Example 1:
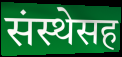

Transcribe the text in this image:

संस्थेसह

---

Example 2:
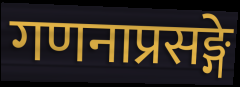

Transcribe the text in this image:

गणनाप्रसङ्गे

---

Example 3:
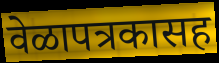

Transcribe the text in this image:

वेळापत्रकासह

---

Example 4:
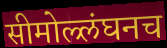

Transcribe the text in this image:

सीमोल्लंघनच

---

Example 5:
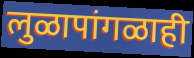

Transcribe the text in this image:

लुळापांगळाही